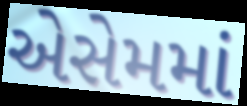
એસેમમાં